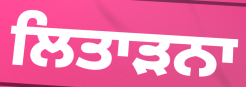
ਲਿਤਾੜਨਾ